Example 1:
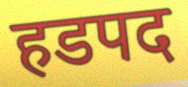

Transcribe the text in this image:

हडपद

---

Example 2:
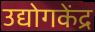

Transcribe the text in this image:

उद्योगकेंद्र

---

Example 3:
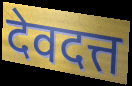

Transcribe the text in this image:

देवदत्त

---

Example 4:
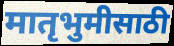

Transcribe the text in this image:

मातृभुमीसाठी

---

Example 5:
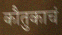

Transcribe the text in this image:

कौतुकाचं